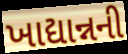
ખાદ્યાન્નની